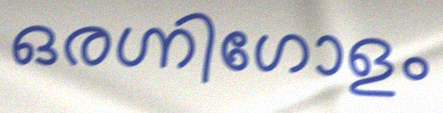
ഒരഗ്നിഗോളം